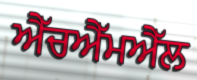
ਐੱਚਐੱਮਐੱਲ